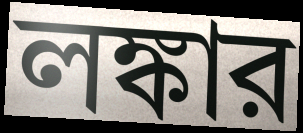
লঙ্কার